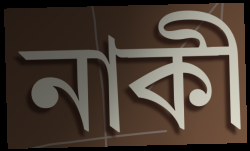
নাকী